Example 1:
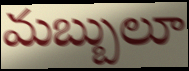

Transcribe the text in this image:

మబ్బులూ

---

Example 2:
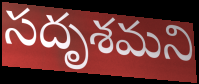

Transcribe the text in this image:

సదృశమని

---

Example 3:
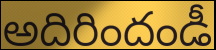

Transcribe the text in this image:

అదిరిందండీ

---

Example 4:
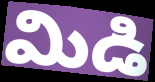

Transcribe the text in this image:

మిడి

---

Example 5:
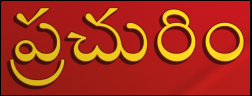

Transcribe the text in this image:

ప్రచురిం